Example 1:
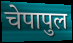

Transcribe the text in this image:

चेपापुल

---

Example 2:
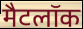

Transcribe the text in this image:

मैटलॉक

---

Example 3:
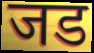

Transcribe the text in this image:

जड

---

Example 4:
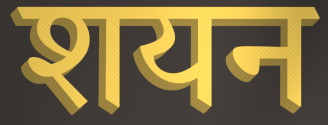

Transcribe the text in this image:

शयन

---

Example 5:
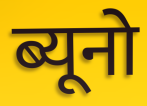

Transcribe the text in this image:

ब्यूनो